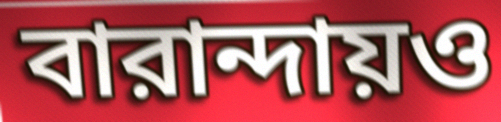
বারান্দায়ও